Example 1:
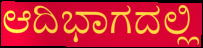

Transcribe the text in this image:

ಆದಿಭಾಗದಲ್ಲಿ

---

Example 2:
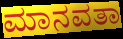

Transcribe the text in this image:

ಮಾನವತಾ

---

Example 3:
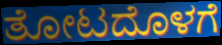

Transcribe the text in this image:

ತೋಟದೊಳಗೆ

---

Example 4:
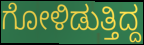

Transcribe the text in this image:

ಗೋಳಿಡುತ್ತಿದ್ದ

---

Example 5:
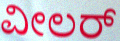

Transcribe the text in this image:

ವೀಲರ್